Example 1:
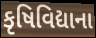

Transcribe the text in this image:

કૃષિવિદ્યાના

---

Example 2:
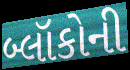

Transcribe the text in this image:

બ્લૉકોની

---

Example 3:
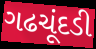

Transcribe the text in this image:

ગઢચૂંદડી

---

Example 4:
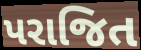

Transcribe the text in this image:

પરાજિત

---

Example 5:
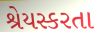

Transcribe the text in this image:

શ્રેયસ્કરતા